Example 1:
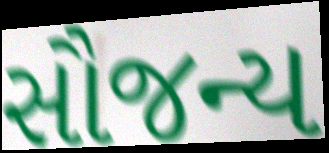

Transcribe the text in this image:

સૌજન્ય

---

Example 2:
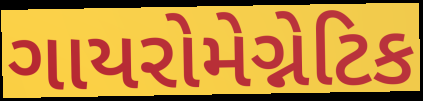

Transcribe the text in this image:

ગાયરોમેગ્નેટિક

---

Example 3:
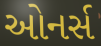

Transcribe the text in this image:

ઓનર્સ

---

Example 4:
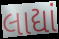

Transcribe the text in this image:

લાદ્યાં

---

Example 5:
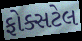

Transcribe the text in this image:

ફોક્સટેલ